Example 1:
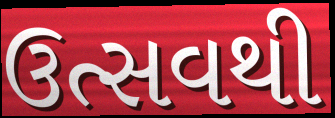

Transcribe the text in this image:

ઉત્સવથી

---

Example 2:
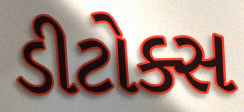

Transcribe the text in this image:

ડીટોક્સ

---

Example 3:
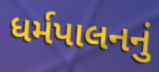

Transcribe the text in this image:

ધર્મપાલનનું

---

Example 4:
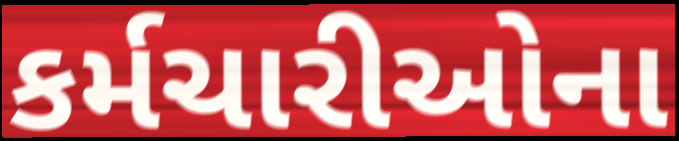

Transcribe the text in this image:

કર્મચારીઓના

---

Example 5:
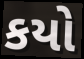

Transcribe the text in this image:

કયો